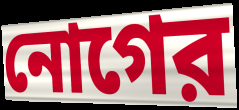
নোগের